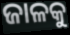
ଜାଳକୁ